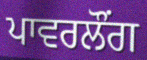
ਪਾਵਰਲੌਂਗ